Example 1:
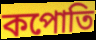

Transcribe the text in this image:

কপোতি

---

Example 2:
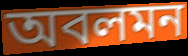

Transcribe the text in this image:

অবলমন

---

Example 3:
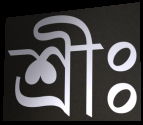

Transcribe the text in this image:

শ্রীঃ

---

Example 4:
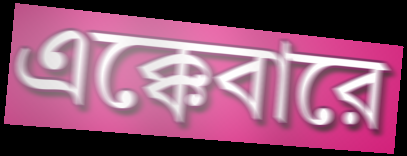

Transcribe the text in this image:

এক্কেবারে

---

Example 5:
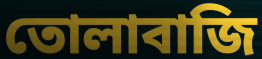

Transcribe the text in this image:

তোলাবাজি